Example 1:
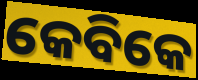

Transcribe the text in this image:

କେବିକେ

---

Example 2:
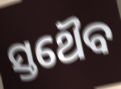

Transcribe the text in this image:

ସ୍ତଥୈବ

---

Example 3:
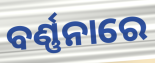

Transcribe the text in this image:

ବର୍ଣ୍ଣନାରେ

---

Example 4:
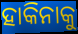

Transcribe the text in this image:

ହାକିନାକୁ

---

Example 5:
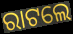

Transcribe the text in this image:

ରାଟଲେ